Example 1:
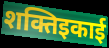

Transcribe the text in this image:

शक्तिइकाई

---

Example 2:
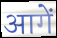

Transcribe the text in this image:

आगें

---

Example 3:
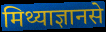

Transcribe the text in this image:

मिथ्याज्ञानसे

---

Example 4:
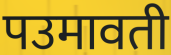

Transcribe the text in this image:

पउमावती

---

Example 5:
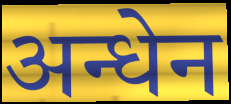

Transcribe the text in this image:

अन्धेन